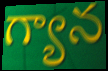
గ్యాన